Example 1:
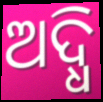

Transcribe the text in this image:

ଅଦ୍ଧି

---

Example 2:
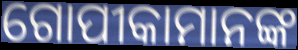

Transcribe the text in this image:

ଗୋପୀକାମାନଙ୍କ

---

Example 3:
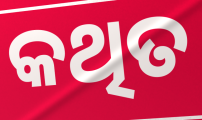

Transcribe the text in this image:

କଥିତ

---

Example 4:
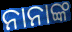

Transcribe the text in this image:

ନାନାଙ୍କ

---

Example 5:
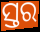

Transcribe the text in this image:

ସ୍ତର